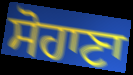
ਸੋਹਾਣਾ